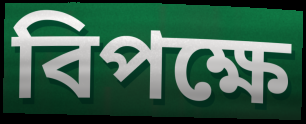
বিপক্ষে